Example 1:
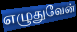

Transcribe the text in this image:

எழுதுவேன்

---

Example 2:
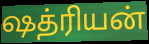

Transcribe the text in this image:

ஷத்ரியன்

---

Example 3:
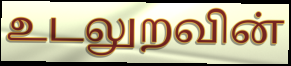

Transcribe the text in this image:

உடலுறவின்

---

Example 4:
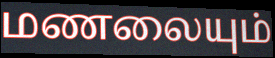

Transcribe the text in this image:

மணலையும்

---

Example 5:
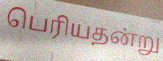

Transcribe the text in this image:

பெரியதன்று